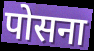
पोसना